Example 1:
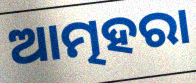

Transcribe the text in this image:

ଆତ୍ମହରା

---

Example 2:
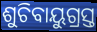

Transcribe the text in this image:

ଶୁଚିବାୟୁଗ୍ରସ୍ତ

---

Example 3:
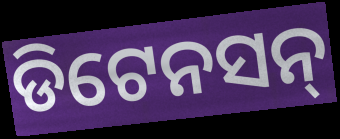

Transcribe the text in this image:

ଡିଟେନସନ୍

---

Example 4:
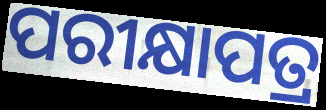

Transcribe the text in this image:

ପରୀକ୍ଷାପତ୍ର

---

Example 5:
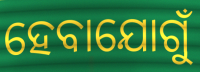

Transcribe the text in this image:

ହେବାଯୋଗୁଁ